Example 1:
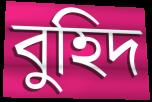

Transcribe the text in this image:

বুহিদ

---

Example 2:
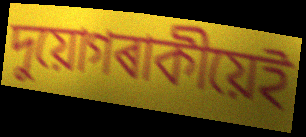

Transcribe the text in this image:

দুয়োগৰাকীয়েই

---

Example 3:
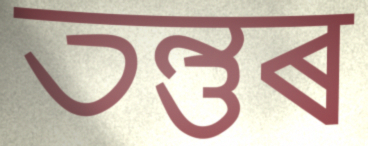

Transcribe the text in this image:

তন্তুৰ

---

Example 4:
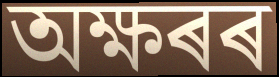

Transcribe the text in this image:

অক্ষৰৰ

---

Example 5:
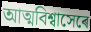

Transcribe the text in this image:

আত্মবিশ্বাসেৰে